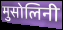
मुसोलिनी